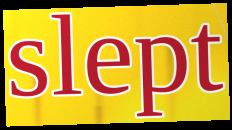
slept